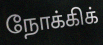
நோக்கிக்